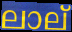
ലാല്